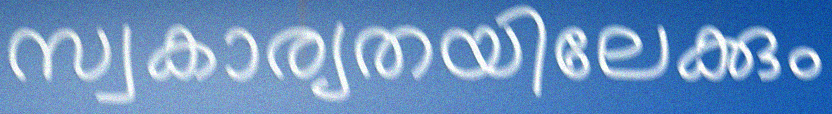
സ്വകാര്യതയിലേക്കും